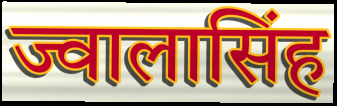
ज्वालासिंह